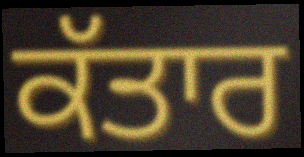
ਕੱਤਾਰ